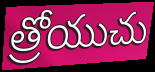
త్రోయుచు